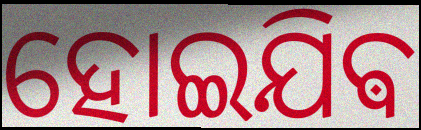
ହୋଇଯିଵ